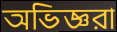
অভিজ্ঞরা